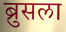
ब्रुसला